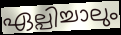
ഏല്പിച്ചാലും